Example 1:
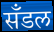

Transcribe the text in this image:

सँडल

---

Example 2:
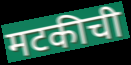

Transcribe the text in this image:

मटकीची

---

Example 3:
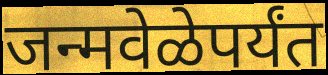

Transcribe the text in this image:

जन्मवेळेपर्यंत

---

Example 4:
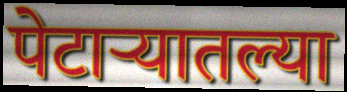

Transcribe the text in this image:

पेटाऱ्यातल्या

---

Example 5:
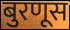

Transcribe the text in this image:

बुरणूस